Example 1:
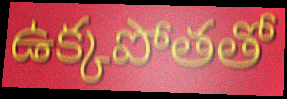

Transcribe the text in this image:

ఉక్కపోతతో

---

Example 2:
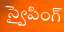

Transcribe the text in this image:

స్వైపింగ్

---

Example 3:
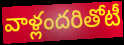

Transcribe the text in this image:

వాళ్లందరితోటీ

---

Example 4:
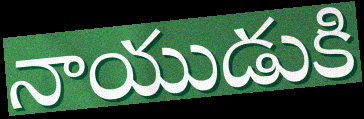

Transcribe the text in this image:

నాయుడుకి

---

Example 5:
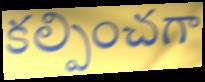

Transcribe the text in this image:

కల్పించగా